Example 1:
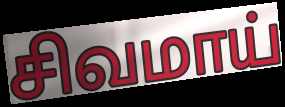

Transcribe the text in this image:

சிவமாய்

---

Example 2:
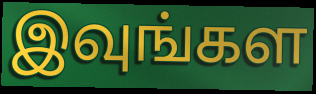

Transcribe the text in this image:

இவுங்கள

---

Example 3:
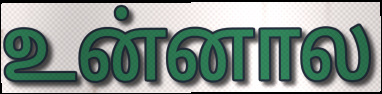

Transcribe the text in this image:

உன்னால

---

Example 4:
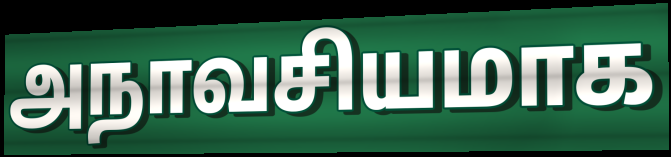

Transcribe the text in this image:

அநாவசியமாக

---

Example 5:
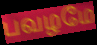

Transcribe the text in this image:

பவழமே